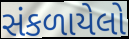
સંકળાયેલો